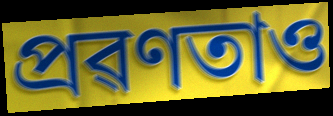
প্ৰৱণতাও